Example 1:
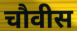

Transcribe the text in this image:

चौवीस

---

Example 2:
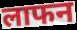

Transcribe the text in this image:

लाफन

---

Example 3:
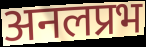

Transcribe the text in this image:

अनलप्रभ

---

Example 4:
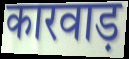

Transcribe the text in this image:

कारवाड़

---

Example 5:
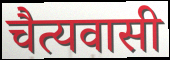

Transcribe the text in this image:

चैत्यवासी